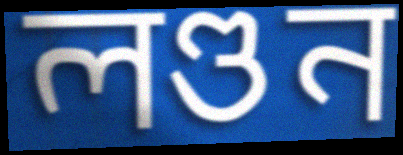
লণ্ডন